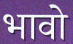
भावो